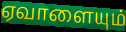
ஏவாளையும்